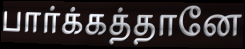
பார்க்கத்தானே